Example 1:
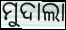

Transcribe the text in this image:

ମୁଦାଲା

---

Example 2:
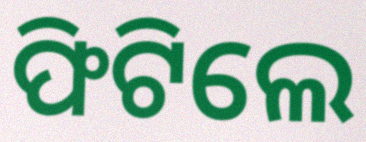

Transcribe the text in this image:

ଫିଟିଲେ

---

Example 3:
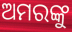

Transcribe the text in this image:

ଅମରଙ୍କୁ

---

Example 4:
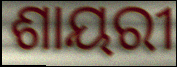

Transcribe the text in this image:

ଶାୟରୀ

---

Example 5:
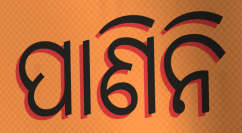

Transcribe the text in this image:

ପାଣିନି